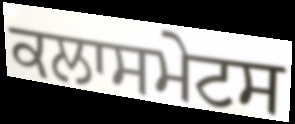
ਕਲਾਸਮੇਟਸ